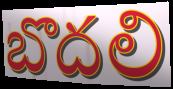
బొదలి